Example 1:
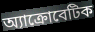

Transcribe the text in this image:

অ্যাক্রোবেটিক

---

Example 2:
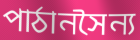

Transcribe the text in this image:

পাঠানসৈন্য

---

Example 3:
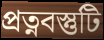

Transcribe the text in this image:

প্রত্নবস্তুটি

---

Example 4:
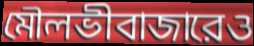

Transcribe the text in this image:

মৌলভীবাজারেও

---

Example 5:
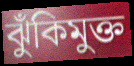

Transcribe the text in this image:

ঝুঁকিমুক্ত